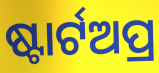
ଷ୍ଟାର୍ଟଅପ୍ର